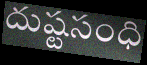
దుష్టసంధి